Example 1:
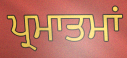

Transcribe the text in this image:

ਪ੍ਰਮਾਤਮਾਂ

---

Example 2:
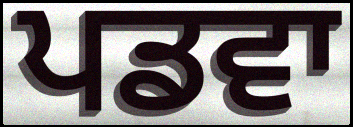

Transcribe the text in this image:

ਪਡਵਾ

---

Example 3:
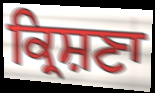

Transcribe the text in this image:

ਕ੍ਰਿਸ਼ਣਾ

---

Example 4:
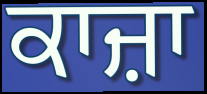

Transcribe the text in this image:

ਕਾਜ਼ਾ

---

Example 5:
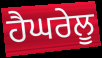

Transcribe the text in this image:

ਹੈਘਰੇਲੂ